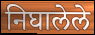
निघालेले